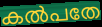
കൽപതേ